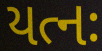
યત્નઃ